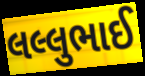
લલ્લુભાઈ